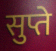
सुप्ते